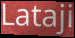
Lataji